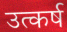
उत्कर्ष